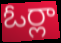
ఓర్లా